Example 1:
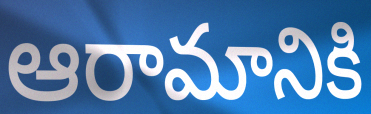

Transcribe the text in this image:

ఆరామానికి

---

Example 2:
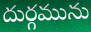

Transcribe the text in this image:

దుర్గమును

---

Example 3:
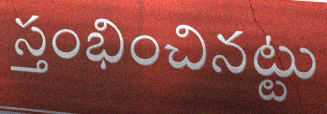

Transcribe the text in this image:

స్తంభించినట్టు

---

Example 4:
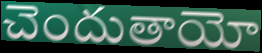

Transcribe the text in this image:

చెందుతాయో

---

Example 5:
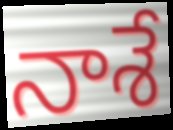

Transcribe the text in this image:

నాశే